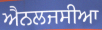
ਐਨਲਜਸੀਆ